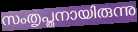
സംതൃപ്തനായിരുന്നു